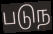
படுந